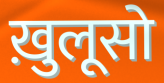
ख़ुलूसो